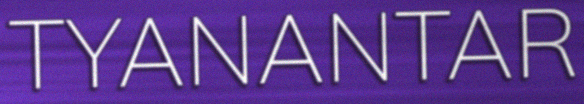
TYANANTAR